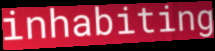
inhabiting